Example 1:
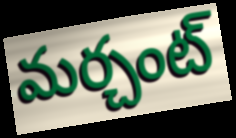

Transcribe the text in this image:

మర్చంట్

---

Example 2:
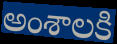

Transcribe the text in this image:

అంశాలకి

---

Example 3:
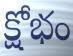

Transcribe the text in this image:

క్షోభం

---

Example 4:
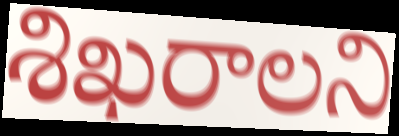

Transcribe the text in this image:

శిఖరాలని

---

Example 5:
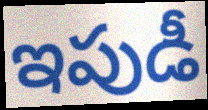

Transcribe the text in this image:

ఇపుడీ